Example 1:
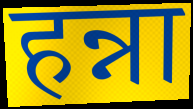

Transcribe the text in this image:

हन्ना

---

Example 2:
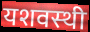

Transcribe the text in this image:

यशवस्थी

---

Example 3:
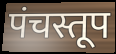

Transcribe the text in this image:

पंचस्तूप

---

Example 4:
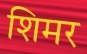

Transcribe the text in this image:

शिमर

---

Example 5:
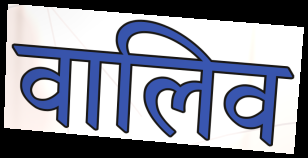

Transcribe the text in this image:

वालिव